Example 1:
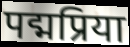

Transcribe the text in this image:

पद्मप्रिया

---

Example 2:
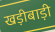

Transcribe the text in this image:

खड़ीबाड़ी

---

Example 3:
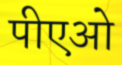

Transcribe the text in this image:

पीएओ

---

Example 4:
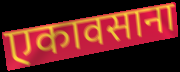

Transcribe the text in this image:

एकावसाना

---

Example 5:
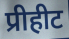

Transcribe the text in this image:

प्रीहीट